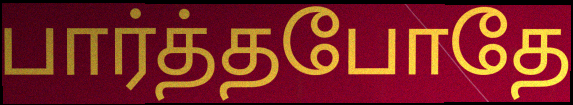
பார்த்தபோதே